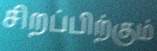
சிறப்பிற்கும்